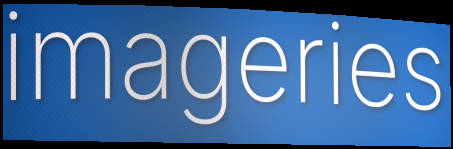
imageries